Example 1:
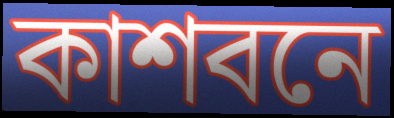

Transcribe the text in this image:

কাশবনে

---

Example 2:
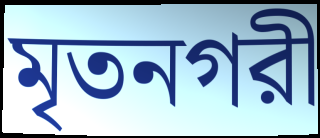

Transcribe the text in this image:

মৃতনগরী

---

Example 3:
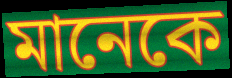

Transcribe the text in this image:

মানেকে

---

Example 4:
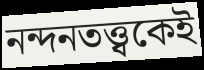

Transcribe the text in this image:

নন্দনতত্ত্বকেই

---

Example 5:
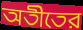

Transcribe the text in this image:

অতীতের